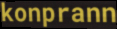
konprann